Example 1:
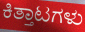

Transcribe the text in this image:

ಕಿತ್ತಾಟಗಳು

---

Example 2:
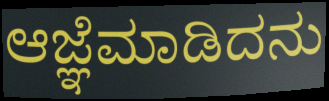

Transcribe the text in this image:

ಆಜ್ಞೆಮಾಡಿದನು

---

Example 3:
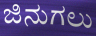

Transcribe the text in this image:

ಜಿನುಗಲು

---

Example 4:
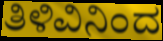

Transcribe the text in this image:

ತಿಳಿವಿನಿಂದ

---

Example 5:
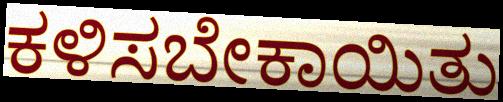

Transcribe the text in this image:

ಕಳಿಸಬೇಕಾಯಿತು